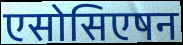
एसोसिएषन